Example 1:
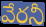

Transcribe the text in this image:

వేరనీ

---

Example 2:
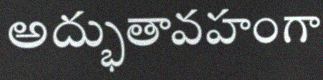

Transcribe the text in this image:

అద్భుతావహంగా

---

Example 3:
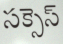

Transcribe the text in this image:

సక్సెస్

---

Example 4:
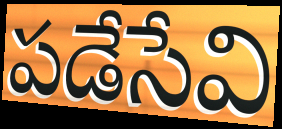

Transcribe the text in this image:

పడేసేవి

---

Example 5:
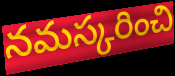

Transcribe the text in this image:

నమస్కరించి